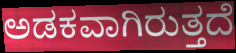
ಅಡಕವಾಗಿರುತ್ತದೆ